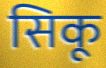
सिकू